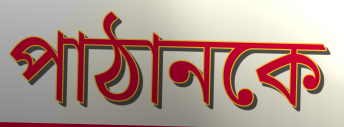
পাঠানকে